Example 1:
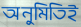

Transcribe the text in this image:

অনুমিতিই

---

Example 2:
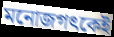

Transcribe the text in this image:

মনোজগৎকেই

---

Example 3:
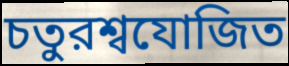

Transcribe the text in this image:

চতুরশ্বযোজিত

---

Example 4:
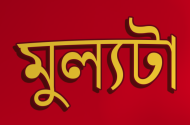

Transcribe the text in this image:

মুল্যটা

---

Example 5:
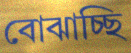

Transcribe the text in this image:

বোঝাচ্ছি